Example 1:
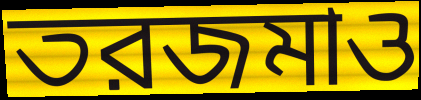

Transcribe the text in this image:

তরজমাও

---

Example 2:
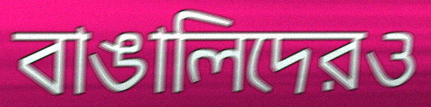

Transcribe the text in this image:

বাঙালিদেরও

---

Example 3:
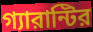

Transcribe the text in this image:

গ্যারান্টির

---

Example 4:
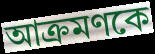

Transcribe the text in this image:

আক্রমণকে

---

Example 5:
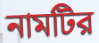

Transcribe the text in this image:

নামটির